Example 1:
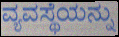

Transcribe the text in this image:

ವ್ಯವಸ್ಥೆಯನ್ನು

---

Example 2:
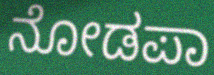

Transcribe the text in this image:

ನೋಡಪಾ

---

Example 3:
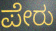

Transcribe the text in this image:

ಪೇರು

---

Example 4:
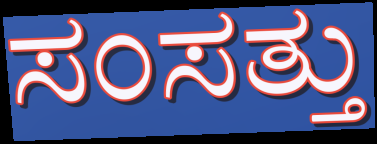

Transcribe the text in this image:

ಸಂಸತ್ತು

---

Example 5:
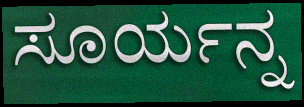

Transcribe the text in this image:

ಸೂರ್ಯನ್ನ